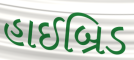
હાઈબ્રિડ